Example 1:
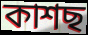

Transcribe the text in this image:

কাশছ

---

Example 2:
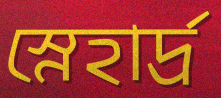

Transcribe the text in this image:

স্নেহার্দ্র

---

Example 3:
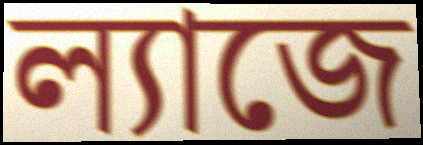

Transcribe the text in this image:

ল্যাজে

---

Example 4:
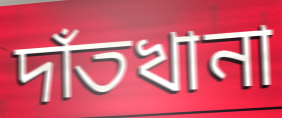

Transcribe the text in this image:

দাঁতখানা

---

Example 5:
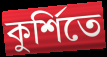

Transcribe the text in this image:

কুর্শিতে